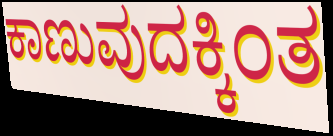
ಕಾಣುವುದಕ್ಕಿಂತ